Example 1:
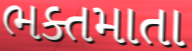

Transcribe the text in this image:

ભક્તમાતા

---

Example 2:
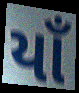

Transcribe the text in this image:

યાઁ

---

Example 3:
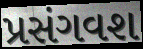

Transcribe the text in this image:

પ્રસંગવશ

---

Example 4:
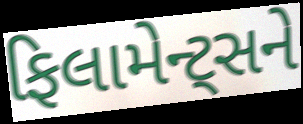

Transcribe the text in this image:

ફિલામેન્ટ્સને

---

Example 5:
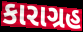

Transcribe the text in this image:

કારાગ્રહ